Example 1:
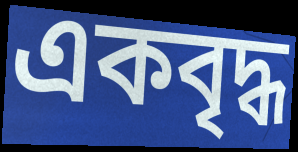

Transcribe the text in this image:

একবৃদ্ধ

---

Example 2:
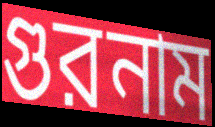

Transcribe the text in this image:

গুরনাম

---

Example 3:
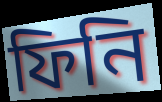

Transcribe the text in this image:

ফিনি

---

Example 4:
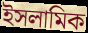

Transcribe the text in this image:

ইসলামিক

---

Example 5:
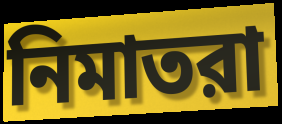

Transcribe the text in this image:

নিমাতরা